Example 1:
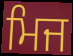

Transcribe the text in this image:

ਮਿਜ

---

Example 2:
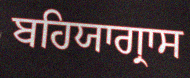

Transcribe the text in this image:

ਬਹਿਯਾਗ੍ਰਾਸ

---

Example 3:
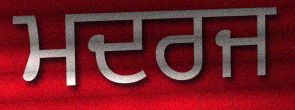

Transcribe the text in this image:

ਮਦਰਜ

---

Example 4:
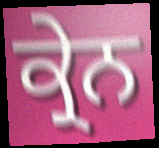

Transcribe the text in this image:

ਕ੍ਰੇਨ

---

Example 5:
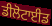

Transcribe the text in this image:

ਡੀਲੋਟਾਈਡ